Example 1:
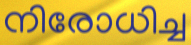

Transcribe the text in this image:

നിരോധിച്ച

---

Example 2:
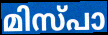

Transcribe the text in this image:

മിസ്പാ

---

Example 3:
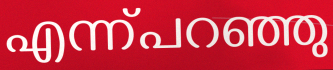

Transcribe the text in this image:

എന്ന്പറഞ്ഞു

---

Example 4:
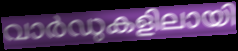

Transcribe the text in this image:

വാർഡുകളിലായി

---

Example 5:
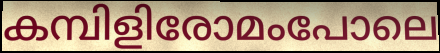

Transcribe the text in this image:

കമ്പിളിരോമംപോലെ